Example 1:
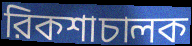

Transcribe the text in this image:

রিকশাচালক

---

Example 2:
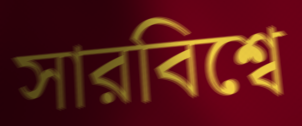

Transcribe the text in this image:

সারবিশ্বে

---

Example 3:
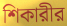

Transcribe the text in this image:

শিকারীর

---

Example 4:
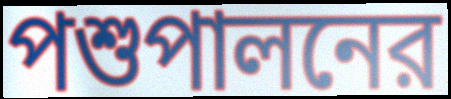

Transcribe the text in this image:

পশুপালনের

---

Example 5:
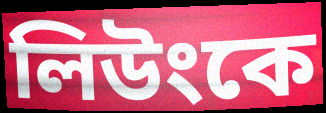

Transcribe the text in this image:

লিউংকে